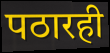
पठारही